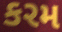
કરમ